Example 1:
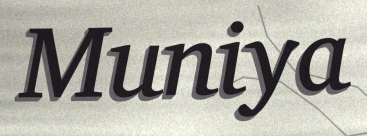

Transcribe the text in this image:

Muniya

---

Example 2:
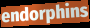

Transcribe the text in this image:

endorphins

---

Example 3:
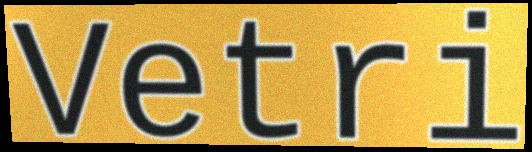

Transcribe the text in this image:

Vetri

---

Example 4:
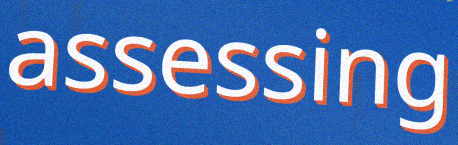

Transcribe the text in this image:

assessing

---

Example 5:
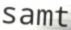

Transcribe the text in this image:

samt